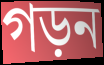
গড়ন